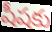
షీషకు